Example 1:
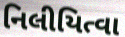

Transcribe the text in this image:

નિલીયિત્વા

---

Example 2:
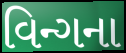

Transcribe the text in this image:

વિન્ગના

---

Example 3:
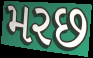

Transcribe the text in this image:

મરછ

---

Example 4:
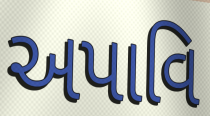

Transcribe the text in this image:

અપાવિ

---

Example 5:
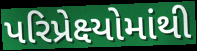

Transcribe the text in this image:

પરિપ્રેક્ષ્યોમાંથી